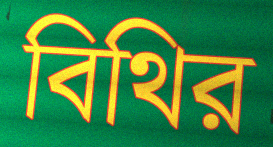
বিথির